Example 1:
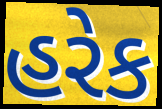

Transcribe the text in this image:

હરેક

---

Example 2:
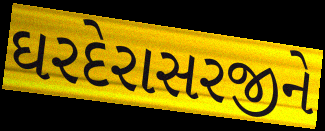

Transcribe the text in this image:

ઘરદેરાસરજીને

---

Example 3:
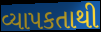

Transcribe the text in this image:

વ્યાપકતાથી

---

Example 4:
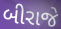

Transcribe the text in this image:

બીરાજે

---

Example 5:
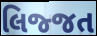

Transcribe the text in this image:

લિજ્જત